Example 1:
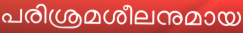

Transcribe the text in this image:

പരിശ്രമശീലനുമായ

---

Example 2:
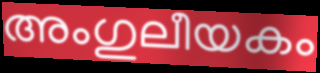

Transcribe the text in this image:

അംഗുലീയകം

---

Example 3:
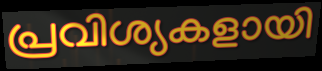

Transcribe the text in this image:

പ്രവിശ്യകളായി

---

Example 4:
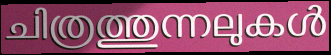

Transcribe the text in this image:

ചിത്രത്തുന്നലുകൾ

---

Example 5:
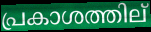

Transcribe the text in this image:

പ്രകാശത്തില്